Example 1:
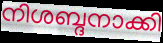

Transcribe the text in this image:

നിശബ്ദനാക്കി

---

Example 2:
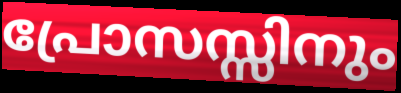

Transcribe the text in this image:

പ്രോസസ്സിനും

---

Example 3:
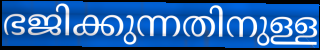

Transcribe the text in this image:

ഭജിക്കുന്നതിനുള്ള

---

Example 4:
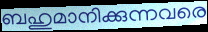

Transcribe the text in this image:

ബഹുമാനിക്കുന്നവരെ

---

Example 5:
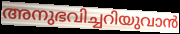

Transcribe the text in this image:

അനുഭവിച്ചറിയുവാൻ